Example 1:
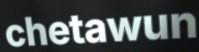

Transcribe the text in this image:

chetawun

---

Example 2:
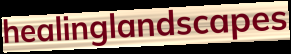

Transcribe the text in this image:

healinglandscapes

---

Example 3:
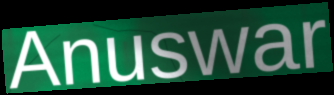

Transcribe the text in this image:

Anuswar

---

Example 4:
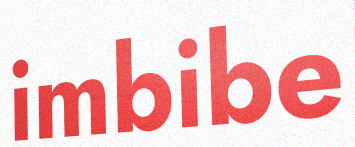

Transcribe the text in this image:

imbibe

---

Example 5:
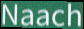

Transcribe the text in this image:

Naach